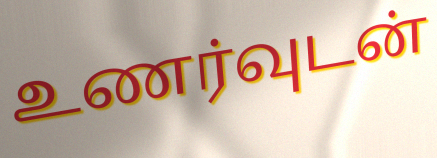
உணர்வுடன்